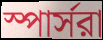
স্পার্সরা